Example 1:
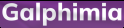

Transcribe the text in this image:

Galphimia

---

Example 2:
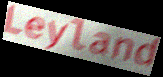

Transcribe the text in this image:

Leyland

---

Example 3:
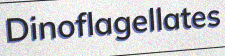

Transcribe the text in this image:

Dinoflagellates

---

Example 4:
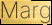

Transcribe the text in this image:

Marg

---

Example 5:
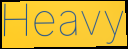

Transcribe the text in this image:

Heavy